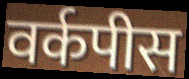
वर्कपीस